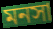
মনসা